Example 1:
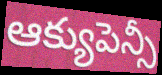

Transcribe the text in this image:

ఆక్యుపెన్సీ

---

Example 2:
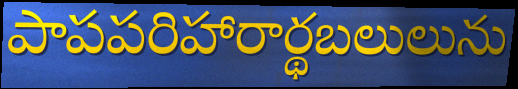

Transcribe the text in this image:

పాపపరిహారార్థబలులును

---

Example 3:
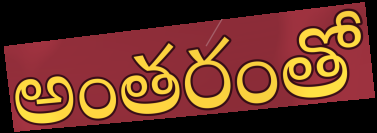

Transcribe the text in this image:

అంతరంతో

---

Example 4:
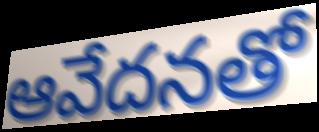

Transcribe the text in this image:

ఆవేదనతో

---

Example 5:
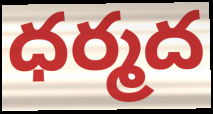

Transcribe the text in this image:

ధర్మద